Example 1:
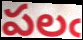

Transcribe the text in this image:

పలఁ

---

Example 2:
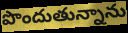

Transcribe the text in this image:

పొందుతున్నాను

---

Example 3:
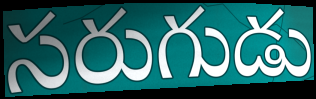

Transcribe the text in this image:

సరుగుడు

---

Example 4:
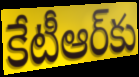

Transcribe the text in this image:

కేటీఆర్‌కు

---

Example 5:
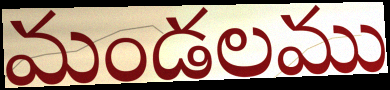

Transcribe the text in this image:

మండలము